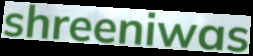
shreeniwas